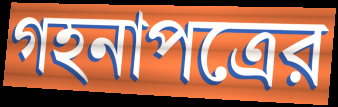
গহনাপত্রের